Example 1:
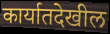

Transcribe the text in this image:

कार्यातदेखील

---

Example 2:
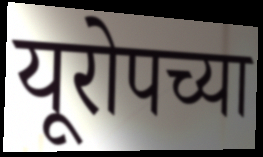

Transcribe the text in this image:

यूरोपच्या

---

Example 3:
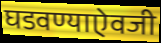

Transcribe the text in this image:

घडवण्याऐवजी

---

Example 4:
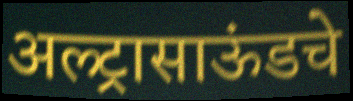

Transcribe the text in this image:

अल्ट्रासाऊंडचे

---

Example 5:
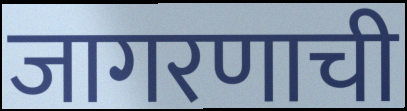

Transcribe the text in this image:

जागरणाची